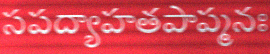
సపద్యాహతపాప్మనః